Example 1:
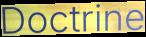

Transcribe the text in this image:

Doctrine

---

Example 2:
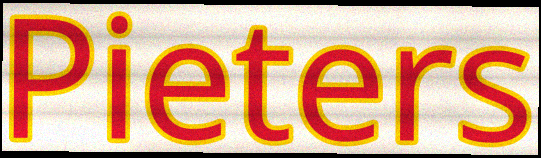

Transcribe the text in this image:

Pieters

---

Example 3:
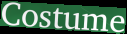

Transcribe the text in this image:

Costume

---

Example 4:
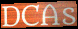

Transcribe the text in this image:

DCAs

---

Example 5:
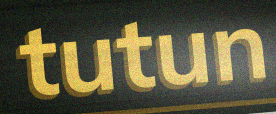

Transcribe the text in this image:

tutun